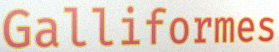
Galliformes